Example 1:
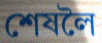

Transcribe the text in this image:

শেষলৈ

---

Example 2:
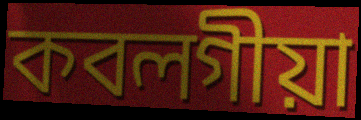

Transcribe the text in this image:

কবলগীয়া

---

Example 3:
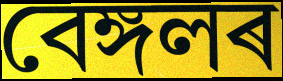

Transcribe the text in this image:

বেঙ্গলৰ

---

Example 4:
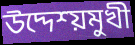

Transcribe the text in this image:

উদ্দেশ্য়মুখী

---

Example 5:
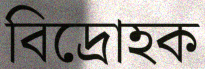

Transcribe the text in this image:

বিদ্ৰোহক